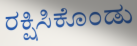
ರಕ್ಷಿಸಿಕೊಂಡು